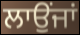
ਲਾਉਂਜਾਂ